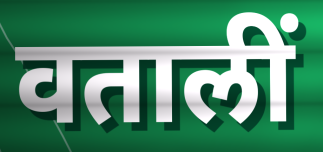
वतालीं